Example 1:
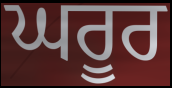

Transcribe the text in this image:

ਘਰੂਰ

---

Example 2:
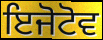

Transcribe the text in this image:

ਇਜੋਟੋਵ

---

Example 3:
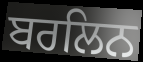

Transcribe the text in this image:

ਬਰਲਿਨ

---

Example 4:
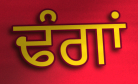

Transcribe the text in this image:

ਢੰਗਾਂ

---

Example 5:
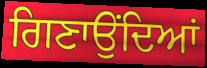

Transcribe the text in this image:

ਗਿਣਾਉਂਦਿਆਂ